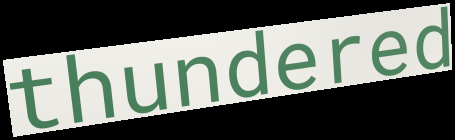
thundered